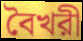
বৈখরী